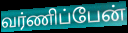
வர்ணிப்பேன்